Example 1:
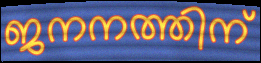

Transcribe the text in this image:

ജനനത്തിന്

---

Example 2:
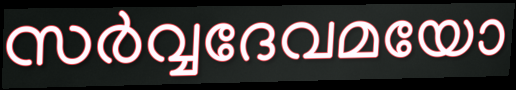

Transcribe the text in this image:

സർവ്വദേവമയോ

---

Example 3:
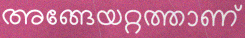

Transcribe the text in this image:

അങ്ങേയറ്റത്താണ്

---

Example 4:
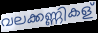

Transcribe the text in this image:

വലക്കണ്ണികള്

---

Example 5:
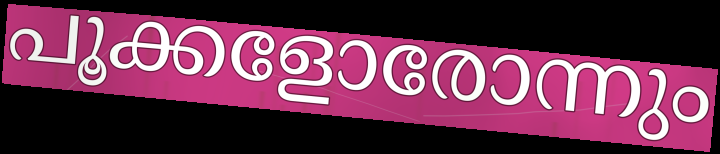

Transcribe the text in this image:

പൂക്കളോരോന്നും